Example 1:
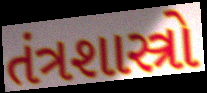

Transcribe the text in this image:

તંત્રશાસ્ત્રો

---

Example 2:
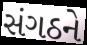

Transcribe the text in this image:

સંગઠને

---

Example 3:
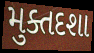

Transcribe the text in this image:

મુક્તદશા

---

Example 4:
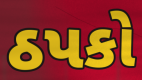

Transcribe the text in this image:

ઠપકો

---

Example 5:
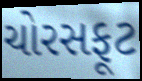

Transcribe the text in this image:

ચોરસફૂટ